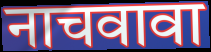
नाचवावा